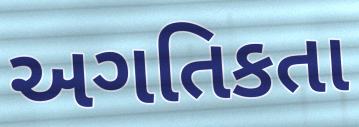
અગતિકતા